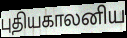
புதியகாலனிய